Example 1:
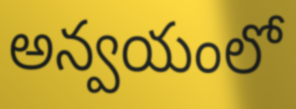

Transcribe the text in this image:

అన్వయంలో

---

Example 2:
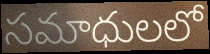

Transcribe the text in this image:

సమాధులలో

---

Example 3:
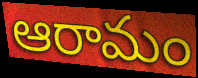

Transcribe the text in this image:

ఆరామం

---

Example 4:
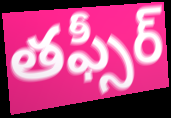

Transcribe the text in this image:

తఫ్సీర్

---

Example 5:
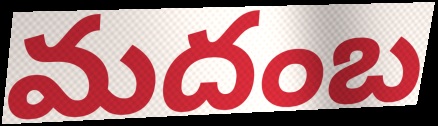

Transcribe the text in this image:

మదంబ